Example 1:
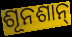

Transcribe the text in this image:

ଶୂନଶାନ୍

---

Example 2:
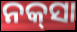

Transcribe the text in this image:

ନକ୍‍ସା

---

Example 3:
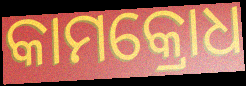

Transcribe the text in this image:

କାମକ୍ରୋଧ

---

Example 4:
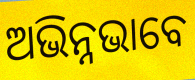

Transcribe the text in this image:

ଅଭିନ୍ନଭାବେ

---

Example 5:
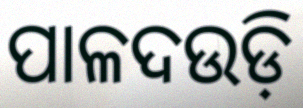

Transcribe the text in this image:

ପାଳଦଉଡ଼ି